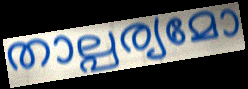
താല്പര്യമോ